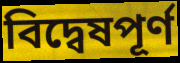
বিদ্বেষপূর্ণ